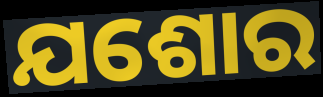
ଯଶୋର